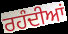
ਰਹੰਦੀਆਂ